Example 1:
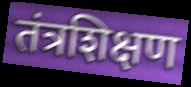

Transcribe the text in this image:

तंत्रशिक्षण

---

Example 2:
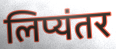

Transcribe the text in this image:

लिप्यंतर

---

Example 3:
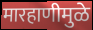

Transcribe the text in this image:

मारहाणीमुळे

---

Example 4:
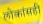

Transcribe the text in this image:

लोकांसही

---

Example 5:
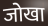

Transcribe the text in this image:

जोखा